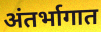
अंतर्भागात